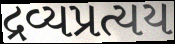
દ્રવ્યપ્રત્યય